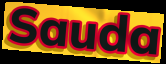
Sauda